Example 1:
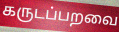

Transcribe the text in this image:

கருடப்பறவை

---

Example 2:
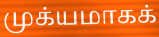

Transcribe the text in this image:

முக்யமாகக்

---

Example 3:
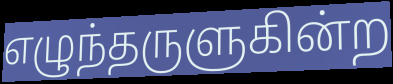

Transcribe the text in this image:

எழுந்தருளுகின்ற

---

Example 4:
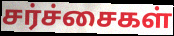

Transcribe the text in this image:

சர்ச்சைகள்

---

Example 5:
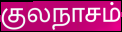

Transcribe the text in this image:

குலநாசம்